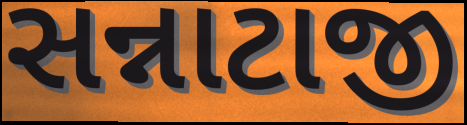
સન્નાટાજી